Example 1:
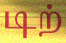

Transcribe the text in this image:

டிற்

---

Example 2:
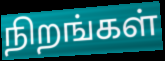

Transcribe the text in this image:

நிறங்கள்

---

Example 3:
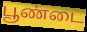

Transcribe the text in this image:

பூண்டை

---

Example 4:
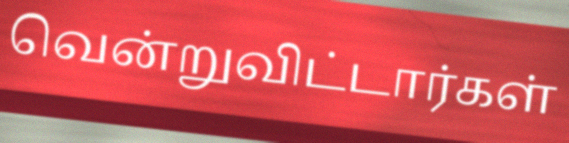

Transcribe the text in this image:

வென்றுவிட்டார்கள்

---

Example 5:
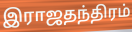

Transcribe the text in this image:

இராஜதந்திரம்